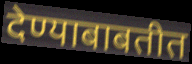
देण्याबाबतीत